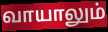
வாயாலும்